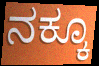
ನಕ್ಕೂ